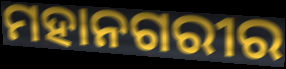
ମହାନଗରୀର